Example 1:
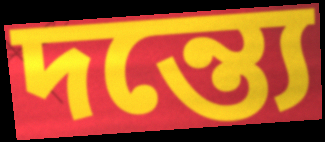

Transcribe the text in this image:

দন্ত্যে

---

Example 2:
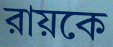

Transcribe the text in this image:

রায়কে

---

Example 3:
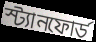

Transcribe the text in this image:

স্ট্যানফোর্ড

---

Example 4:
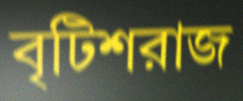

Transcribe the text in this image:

বৃটিশরাজ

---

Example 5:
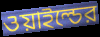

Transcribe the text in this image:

ওয়াইল্ডের